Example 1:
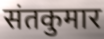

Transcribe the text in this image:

संतकुमार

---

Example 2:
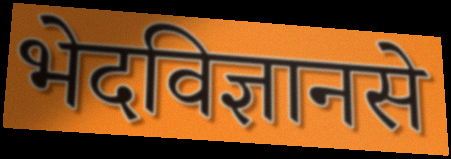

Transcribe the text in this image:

भेदविज्ञानसे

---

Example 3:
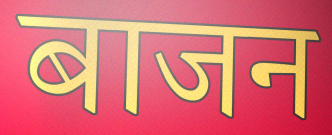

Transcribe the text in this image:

बाजन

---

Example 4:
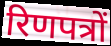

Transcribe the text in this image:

रिणपत्रों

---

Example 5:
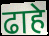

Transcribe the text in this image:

ढाहे